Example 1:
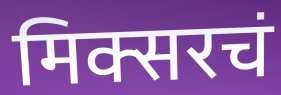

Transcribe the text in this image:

मिक्सरचं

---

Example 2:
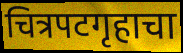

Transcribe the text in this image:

चित्रपटगृहाचा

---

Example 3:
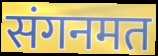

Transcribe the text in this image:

संगनमत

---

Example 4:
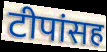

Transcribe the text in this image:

टीपांसह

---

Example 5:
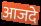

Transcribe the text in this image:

आजदे